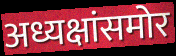
अध्यक्षांसमोर